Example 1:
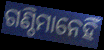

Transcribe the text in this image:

ଗଣ୍ଠିମାନେହିଁ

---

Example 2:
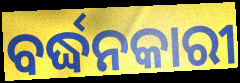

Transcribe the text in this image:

ବର୍ଦ୍ଧନକାରୀ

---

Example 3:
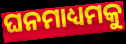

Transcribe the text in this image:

ଘନମାଧ୍ୟମକୁ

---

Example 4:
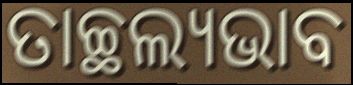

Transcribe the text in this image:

ତାଚ୍ଛଲ୍ୟଭାବ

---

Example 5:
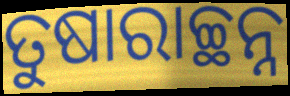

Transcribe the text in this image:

ତୁଷାରାଚ୍ଛନ୍ନ